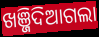
ଖଞ୍ଜିଦିଆଗଲା